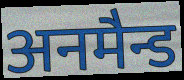
अनमैन्ड